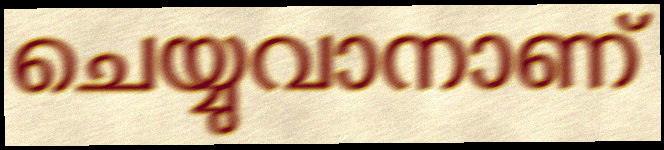
ചെയ്യുവാനാണ്